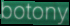
botony